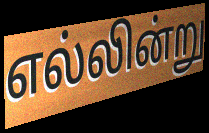
எல்லின்று